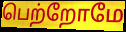
பெற்றோமே